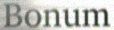
Bonum